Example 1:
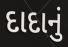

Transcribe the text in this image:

દાદાનું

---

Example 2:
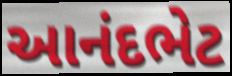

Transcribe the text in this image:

આનંદભેટ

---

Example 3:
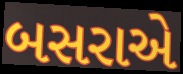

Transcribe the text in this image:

બસરાએ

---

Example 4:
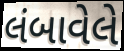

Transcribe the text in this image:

લંબાવેલે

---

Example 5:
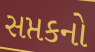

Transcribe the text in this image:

સપ્તકનો